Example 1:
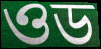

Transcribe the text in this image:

ওড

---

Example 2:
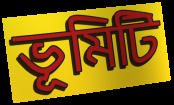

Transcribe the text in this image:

ভূমিটি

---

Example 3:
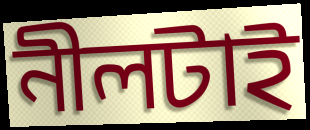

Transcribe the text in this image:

নীলটাই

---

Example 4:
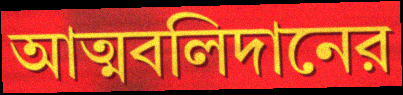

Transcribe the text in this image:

আত্মবলিদানের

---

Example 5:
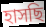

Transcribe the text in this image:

হাসছি